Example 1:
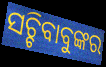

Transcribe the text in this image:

ସଚ୍ଚିବାବୁଙ୍କର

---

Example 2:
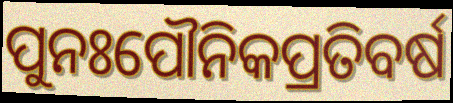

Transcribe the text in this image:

ପୁନଃପୌନିକପ୍ରତିବର୍ଷ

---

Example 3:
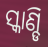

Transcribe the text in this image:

ସ୍କାଣ୍ଡି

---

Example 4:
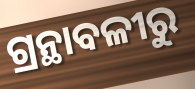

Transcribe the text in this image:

ଗ୍ରନ୍ଥାବଳୀରୁ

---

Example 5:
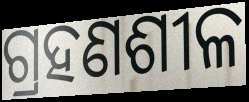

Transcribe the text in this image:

ଗ୍ରହଣଶୀଳ